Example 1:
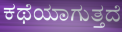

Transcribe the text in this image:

ಕಥೆಯಾಗುತ್ತದೆ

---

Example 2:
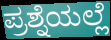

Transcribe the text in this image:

ಪ್ರಶ್ನೆಯಲ್ಲೆ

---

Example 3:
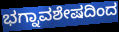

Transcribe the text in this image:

ಭಗ್ನಾವಶೇಷದಿಂದ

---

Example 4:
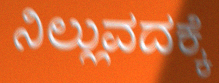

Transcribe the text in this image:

ನಿಲ್ಲುವದಕ್ಕೆ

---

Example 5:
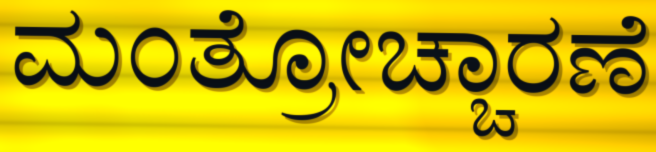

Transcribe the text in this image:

ಮಂತ್ರೋಚ್ಚಾರಣೆ